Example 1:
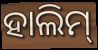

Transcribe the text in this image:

ହାଲିମ୍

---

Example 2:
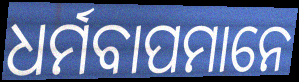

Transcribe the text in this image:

ଧର୍ମବାପମାନେ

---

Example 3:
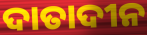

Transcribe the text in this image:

ଦାତାଦୀନ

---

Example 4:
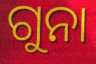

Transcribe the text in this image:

ଗୁନା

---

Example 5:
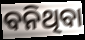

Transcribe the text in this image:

ବନିଥିବା